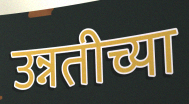
उन्नतीच्या